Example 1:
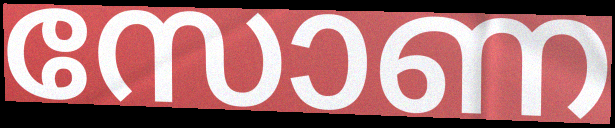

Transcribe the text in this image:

സോണ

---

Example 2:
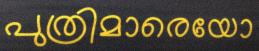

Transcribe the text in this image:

പുത്രിമാരെയോ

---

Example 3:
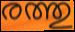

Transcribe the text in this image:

രത്തു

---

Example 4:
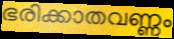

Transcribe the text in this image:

ഭരിക്കാതവണ്ണം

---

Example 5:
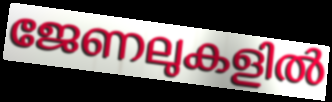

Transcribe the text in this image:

ജേണലുകളിൽ